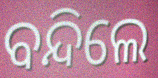
ବନ୍ଦିଲେ